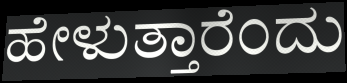
ಹೇಳುತ್ತಾರೆಂದು